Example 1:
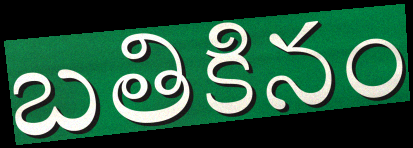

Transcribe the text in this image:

బతికినం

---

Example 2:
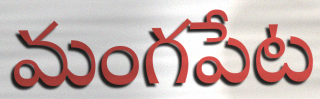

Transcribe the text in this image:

మంగపేట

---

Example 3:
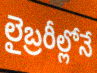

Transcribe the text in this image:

లైబ్రరీల్లోనే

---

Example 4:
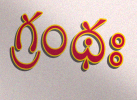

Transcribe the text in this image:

గ్రంథః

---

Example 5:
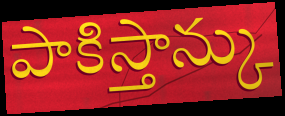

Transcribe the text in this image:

పాకిస్తాన్కు